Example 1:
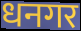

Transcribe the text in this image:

धनगर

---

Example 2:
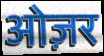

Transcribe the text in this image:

ओज़र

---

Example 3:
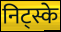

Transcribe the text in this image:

निट्स्के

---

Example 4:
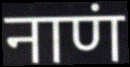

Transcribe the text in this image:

नाणं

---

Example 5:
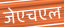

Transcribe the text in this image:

जेएचएल